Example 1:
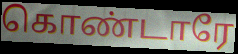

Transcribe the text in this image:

கொண்டாரே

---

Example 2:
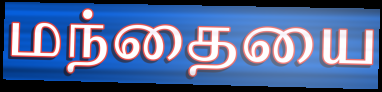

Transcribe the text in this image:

மந்தையை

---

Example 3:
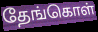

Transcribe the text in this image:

தேங்கொள்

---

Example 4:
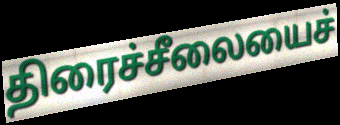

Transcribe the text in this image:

திரைச்சீலையைச்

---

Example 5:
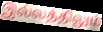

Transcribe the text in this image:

இல்லத்திலும்